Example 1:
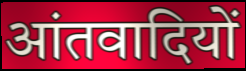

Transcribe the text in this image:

आंतवादियों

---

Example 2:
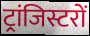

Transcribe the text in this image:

ट्रांजिस्टरों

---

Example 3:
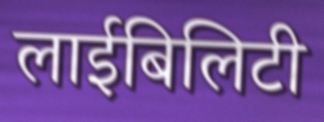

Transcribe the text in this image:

लाईबिलिटी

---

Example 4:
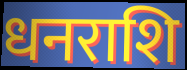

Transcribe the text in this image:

धनराशि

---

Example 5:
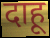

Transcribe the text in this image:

दाहू